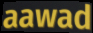
aawad